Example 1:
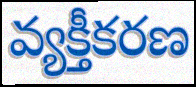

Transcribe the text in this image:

వ్యక్తీకరణ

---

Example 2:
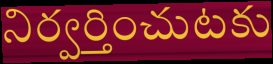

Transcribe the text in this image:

నిర్వర్తించుటకు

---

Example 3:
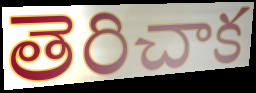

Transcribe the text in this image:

తెరిచాక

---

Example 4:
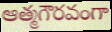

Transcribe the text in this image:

ఆత్మగౌరవంగా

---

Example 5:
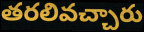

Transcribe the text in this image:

తరలివచ్చారు